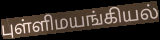
புள்ளிமயங்கியல்